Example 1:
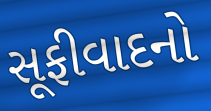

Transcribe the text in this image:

સૂફીવાદનો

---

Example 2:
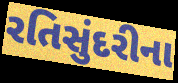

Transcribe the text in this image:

રતિસુંદરીના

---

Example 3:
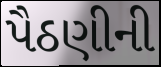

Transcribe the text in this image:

પૈઠણીની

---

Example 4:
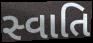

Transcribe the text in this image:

સ્વાતિ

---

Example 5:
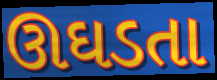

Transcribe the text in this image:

ઊઘડતા